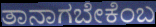
ತಾನಾಗಬೇಕೆಂಬ